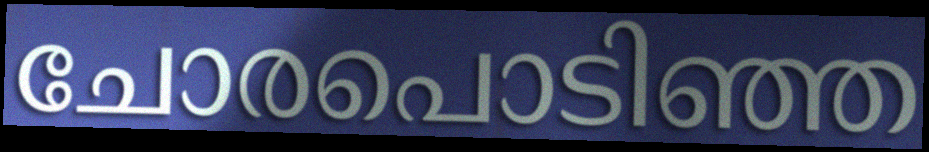
ചോരപൊടിഞ്ഞ